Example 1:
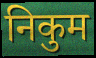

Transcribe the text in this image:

निकुम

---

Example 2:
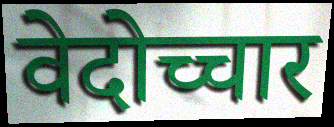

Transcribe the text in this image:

वेदोच्चार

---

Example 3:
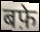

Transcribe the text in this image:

बफ़े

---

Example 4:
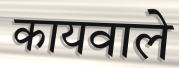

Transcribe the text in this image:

कायवाले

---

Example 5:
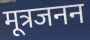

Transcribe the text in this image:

मूत्रजनन